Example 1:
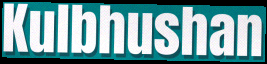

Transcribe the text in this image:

Kulbhushan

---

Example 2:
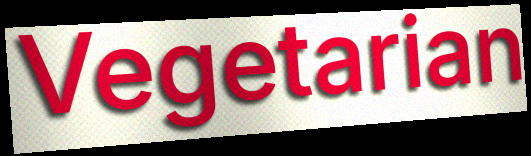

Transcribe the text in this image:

Vegetarian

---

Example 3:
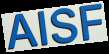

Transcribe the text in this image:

AISF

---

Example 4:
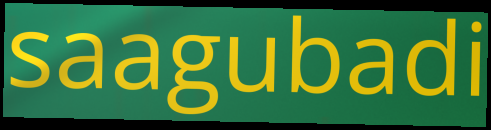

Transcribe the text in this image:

saagubadi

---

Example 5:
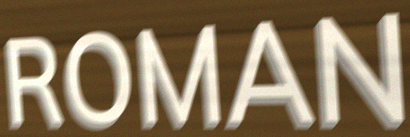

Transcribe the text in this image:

ROMAN